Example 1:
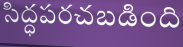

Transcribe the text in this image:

సిద్ధపరచబడింది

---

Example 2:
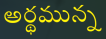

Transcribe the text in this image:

అర్థమున్న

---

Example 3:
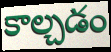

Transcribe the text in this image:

కాల్చడం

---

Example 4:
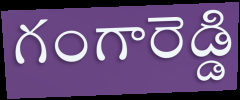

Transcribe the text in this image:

గంగారెడ్డి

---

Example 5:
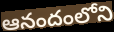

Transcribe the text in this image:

ఆనందంలోని